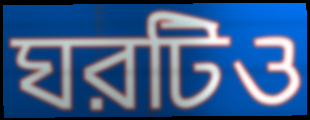
ঘরটিও